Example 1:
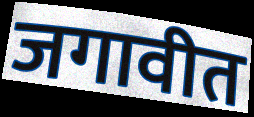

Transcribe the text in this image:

जगावीत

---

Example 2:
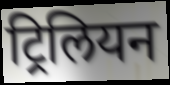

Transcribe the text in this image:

ट्रिलियन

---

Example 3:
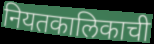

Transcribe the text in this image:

नियतकालिकाची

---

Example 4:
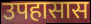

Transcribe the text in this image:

उपहासास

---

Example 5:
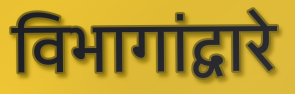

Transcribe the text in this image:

विभागांद्वारे